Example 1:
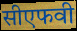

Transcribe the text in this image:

सीएफवी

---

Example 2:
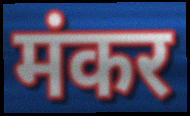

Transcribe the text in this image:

मंकर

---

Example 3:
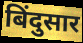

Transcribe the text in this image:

बिंदुसार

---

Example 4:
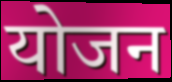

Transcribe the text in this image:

योजन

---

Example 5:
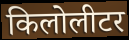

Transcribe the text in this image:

किलोलीटर